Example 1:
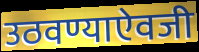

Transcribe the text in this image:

उठवण्याऐवजी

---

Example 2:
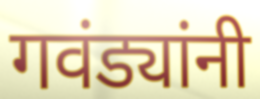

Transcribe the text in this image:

गवंड्यांनी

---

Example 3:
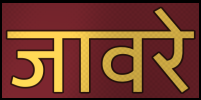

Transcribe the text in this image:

जावरे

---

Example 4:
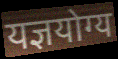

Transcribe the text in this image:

यज्ञयोग्य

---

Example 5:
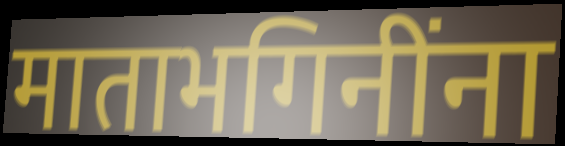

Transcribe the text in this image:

माताभगिनींना